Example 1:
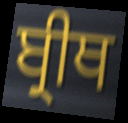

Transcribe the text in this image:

ਬ੍ਰੀਥ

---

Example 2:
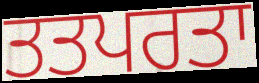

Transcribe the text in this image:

ਤਤਪਰਤਾ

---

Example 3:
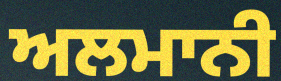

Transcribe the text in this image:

ਅਲਮਾਨੀ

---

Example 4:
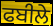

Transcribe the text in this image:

ਫਬੀਲੇ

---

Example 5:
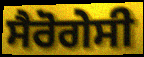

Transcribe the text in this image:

ਸੈਰੋਗੇਸੀ